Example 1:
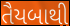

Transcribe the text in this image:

તૈયબાથી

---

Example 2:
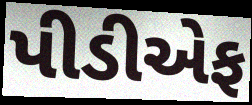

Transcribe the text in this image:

પીડીએફ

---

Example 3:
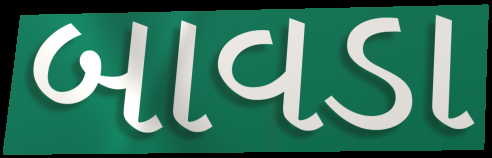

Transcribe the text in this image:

બાવડા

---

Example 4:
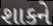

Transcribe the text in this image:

શાકને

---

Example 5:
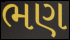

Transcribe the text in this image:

ભણ